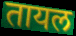
तायल